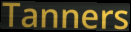
Tanners